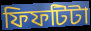
ফিফটিটা